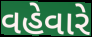
વહેવારે